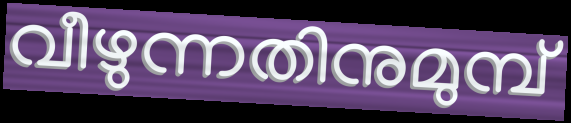
വീഴുന്നതിനുമുമ്പ്